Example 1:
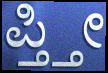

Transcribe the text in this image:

ಪ್ತ್ತೀ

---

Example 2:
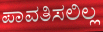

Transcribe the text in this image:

ಪಾವತಿಸಲಿಲ್ಲ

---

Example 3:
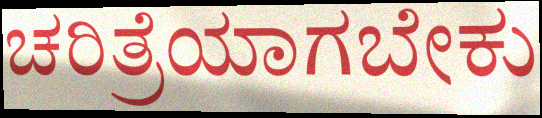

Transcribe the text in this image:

ಚರಿತ್ರೆಯಾಗಬೇಕು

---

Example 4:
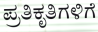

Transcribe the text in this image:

ಪ್ರತಿಕೃತಿಗಳಿಗೆ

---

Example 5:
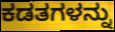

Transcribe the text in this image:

ಕಡತಗಳನ್ನು